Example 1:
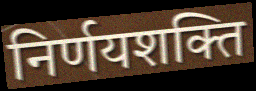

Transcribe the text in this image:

निर्णयशक्ति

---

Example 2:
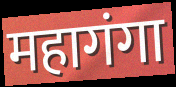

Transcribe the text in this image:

महागंगा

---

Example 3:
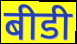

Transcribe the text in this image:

बीडी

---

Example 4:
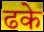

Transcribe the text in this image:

ढके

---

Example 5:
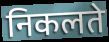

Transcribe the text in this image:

निकलते